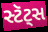
સ્ટૅટ્સ